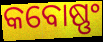
କବୋଷ୍ଣଂ